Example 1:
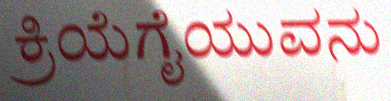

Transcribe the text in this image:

ಕ್ರಿಯೆಗೈಯುವನು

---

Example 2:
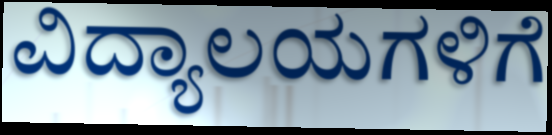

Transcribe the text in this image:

ವಿದ್ಯಾಲಯಗಳಿಗೆ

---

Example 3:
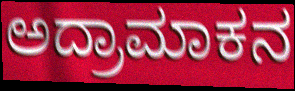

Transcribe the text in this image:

ಅದ್ರಾಮಾಕನ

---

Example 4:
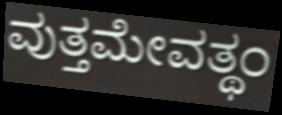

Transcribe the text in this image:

ವುತ್ತಮೇವತ್ಥಂ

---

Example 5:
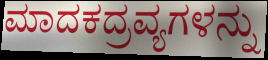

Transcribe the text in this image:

ಮಾದಕದ್ರವ್ಯಗಳನ್ನು